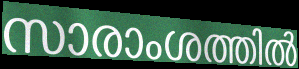
സാരാംശത്തിൽ